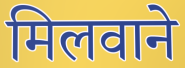
मिलवाने